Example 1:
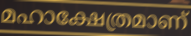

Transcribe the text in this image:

മഹാക്ഷേത്രമാണ്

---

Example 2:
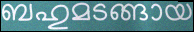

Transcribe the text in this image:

ബഹുമടങ്ങായ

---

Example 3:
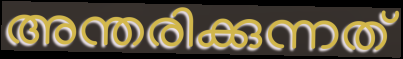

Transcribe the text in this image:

അന്തരിക്കുന്നത്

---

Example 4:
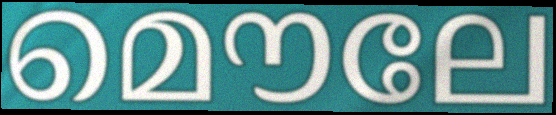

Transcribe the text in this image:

മൌലേ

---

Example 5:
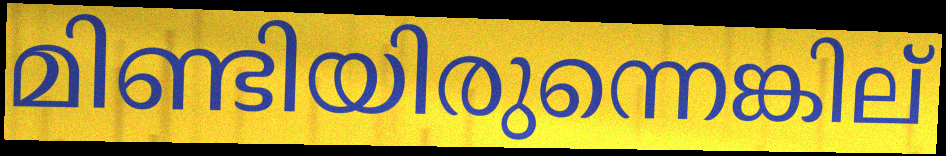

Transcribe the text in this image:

മിണ്ടിയിരുന്നെങ്കില്